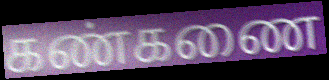
கண்கணை